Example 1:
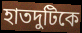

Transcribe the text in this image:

হাতদুটিকে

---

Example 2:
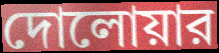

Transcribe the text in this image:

দোলোয়ার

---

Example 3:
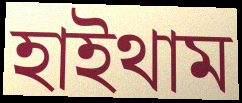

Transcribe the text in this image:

হাইথাম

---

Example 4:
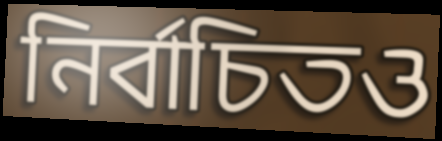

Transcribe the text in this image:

নির্বাচিতও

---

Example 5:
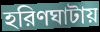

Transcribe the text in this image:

হরিণঘাটায়